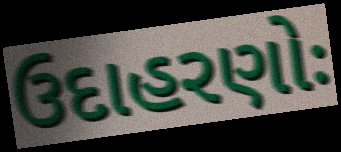
ઉદાહરણોઃ